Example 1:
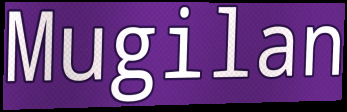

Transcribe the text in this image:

Mugilan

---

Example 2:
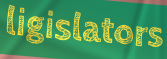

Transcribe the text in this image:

ligislators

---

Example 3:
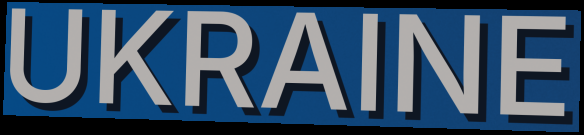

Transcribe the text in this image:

UKRAINE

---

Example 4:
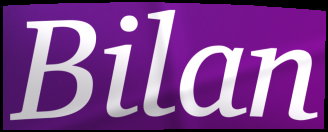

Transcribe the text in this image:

Bilan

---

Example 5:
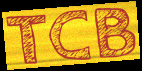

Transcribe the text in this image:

TCB